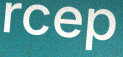
rcep